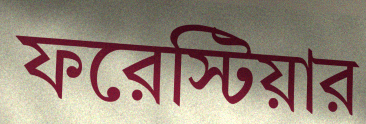
ফরেস্টিয়ার